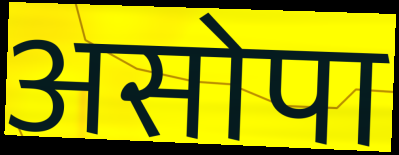
असोपा